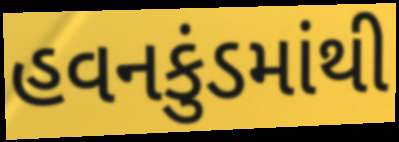
હવનકુંડમાંથી